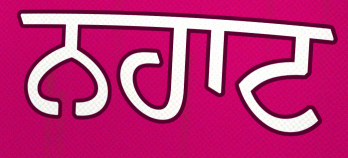
ਨਹਾਟ